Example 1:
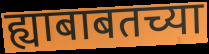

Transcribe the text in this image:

ह्याबाबतच्या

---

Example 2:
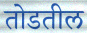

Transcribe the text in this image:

तोडतील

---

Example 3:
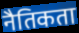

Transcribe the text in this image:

नैतिकता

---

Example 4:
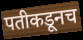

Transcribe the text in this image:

पतीकडूनच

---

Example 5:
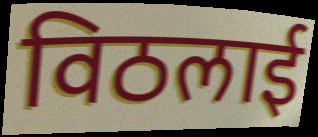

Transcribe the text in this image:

विठलाई